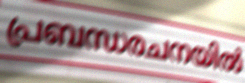
പ്രബന്ധരചനയിൽ